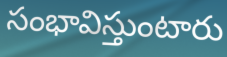
సంభావిస్తుంటారు